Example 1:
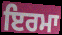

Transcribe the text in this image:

ਇਰਮਾ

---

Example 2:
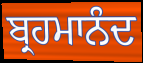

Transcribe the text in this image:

ਬ੍ਰਹਮਾਨੰਦ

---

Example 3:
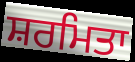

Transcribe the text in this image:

ਸ਼ਰਮਿਤਾ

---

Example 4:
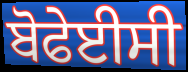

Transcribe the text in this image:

ਬੋਫੇਈਸੀ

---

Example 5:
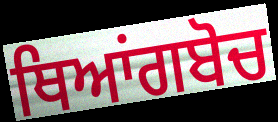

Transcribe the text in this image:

ਥਿਆਂਗਬੋਚ